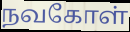
நவகோள்